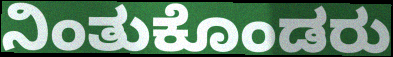
ನಿಂತುಕೊಂಡರು